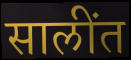
सालींत